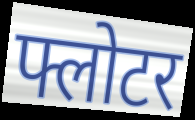
फ्लोटर